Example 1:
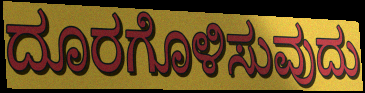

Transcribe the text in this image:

ದೂರಗೊಳಿಸುವುದು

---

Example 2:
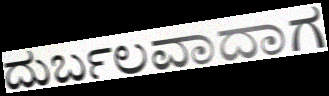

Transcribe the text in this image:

ದುರ್ಬಲವಾದಾಗ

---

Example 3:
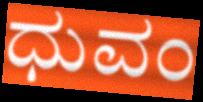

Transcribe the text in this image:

ಧುವಂ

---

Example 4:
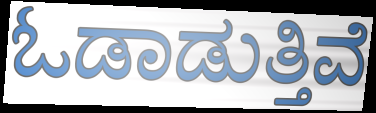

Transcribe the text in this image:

ಓಡಾಡುತ್ತಿವೆ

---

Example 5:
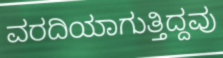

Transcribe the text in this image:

ವರದಿಯಾಗುತ್ತಿದ್ದವು